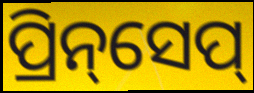
ପ୍ରିନ୍‌ସେପ୍